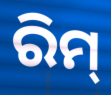
ରିମ୍